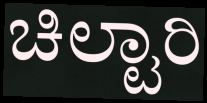
ಚಿಲ್ಟಾರಿ